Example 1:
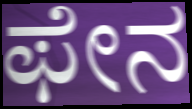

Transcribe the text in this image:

ಫೇನ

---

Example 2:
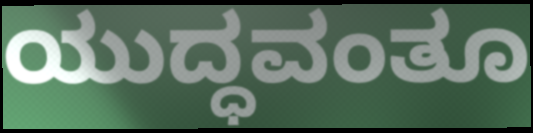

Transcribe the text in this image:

ಯುದ್ಧವಂತೂ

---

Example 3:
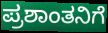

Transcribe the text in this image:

ಪ್ರಶಾಂತನಿಗೆ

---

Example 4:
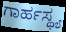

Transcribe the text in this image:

ಗಾರ್ಹಸ್ಥ್ಯ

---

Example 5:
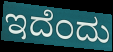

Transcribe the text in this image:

ಇದೆಂದು